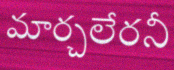
మార్చలేరనీ